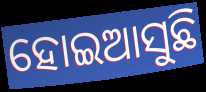
ହୋଇଆସୁଛି